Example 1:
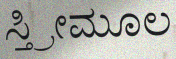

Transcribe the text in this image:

ಸ್ತ್ರೀಮೂಲ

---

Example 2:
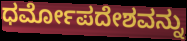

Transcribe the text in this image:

ಧರ್ಮೋಪದೇಶವನ್ನು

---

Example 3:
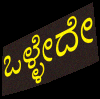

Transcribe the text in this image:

ಒಳ್ಳೇದೇ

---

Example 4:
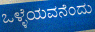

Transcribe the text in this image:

ಒಳ್ಳೆಯವನೆಂದು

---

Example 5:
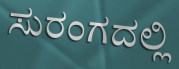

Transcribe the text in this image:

ಸುರಂಗದಲ್ಲಿ